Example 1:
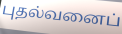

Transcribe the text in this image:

புதல்வனைப்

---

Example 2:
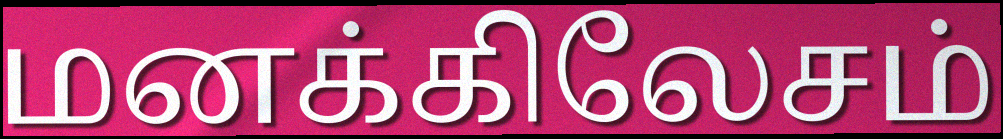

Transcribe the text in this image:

மனக்கிலேசம்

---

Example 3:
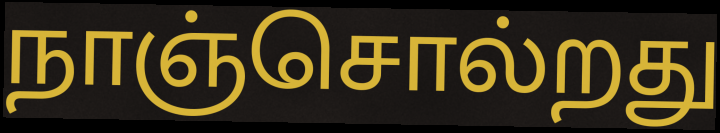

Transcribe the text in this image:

நாஞ்சொல்றது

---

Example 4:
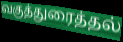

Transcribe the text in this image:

வகுத்துரைத்தல்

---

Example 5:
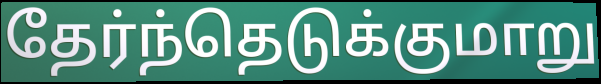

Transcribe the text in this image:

தேர்ந்தெடுக்குமாறு